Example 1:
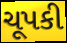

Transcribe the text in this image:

ચૂપકી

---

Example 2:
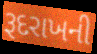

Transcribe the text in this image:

રૂદરાખની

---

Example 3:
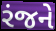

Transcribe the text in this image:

રંજને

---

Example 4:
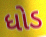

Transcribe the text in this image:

ધોડ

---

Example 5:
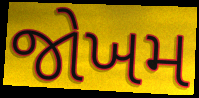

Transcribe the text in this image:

જોખમ